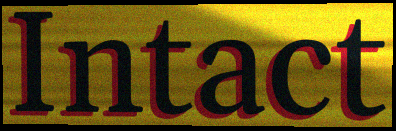
Intact